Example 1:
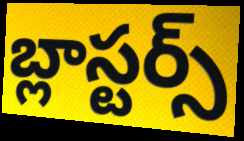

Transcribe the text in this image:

బ్లాస్టర్స్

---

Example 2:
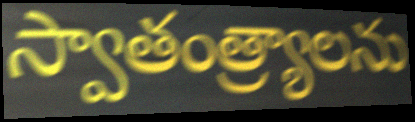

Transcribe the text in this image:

స్వాతంత్ర్యాలను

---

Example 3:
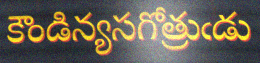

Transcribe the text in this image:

కౌండిన్యసగోత్రుఁడు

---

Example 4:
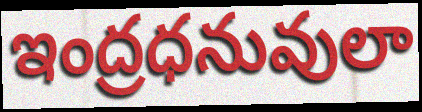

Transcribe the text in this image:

ఇంద్రధనువులా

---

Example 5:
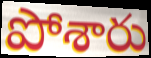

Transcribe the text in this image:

పోశారు